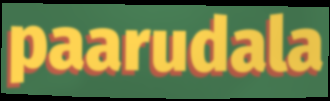
paarudala